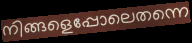
നിങ്ങളെപ്പോലെതന്നെ